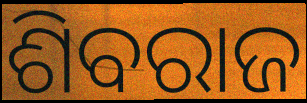
ଶିବରାଜ